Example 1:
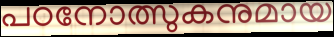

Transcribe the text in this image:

പഠനോത്സുകനുമായ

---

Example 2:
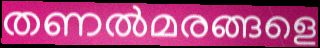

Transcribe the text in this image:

തണൽമരങ്ങളെ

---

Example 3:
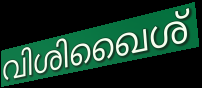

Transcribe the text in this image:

വിശിഖൈശ്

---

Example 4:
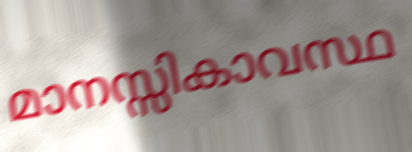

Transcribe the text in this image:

മാനസ്സികാവസ്ഥ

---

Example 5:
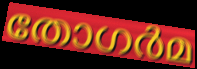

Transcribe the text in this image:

തോഗർമ